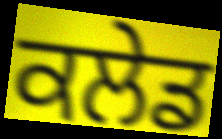
ਕਲੇਡ